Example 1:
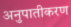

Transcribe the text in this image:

अनुपातीकरण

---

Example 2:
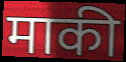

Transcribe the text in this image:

माकी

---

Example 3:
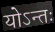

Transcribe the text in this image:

योऽन्तः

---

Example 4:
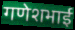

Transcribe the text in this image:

गणेशभाई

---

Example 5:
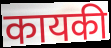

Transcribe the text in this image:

कायकी